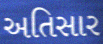
અતિસાર